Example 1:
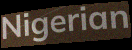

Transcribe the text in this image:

Nigerian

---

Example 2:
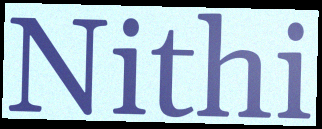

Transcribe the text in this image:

Nithi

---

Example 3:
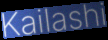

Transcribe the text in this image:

Kailashi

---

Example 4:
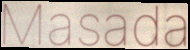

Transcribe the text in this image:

Masada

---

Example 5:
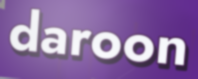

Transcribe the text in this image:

daroon